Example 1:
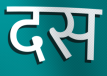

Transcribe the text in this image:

दस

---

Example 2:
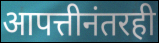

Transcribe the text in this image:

आपत्तीनंतरही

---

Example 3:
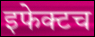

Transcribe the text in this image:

इफेक्टच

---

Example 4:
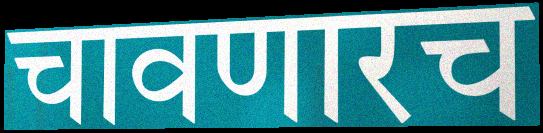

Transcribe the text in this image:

चावणारच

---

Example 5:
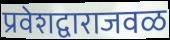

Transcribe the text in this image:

प्रवेशद्वाराजवळ